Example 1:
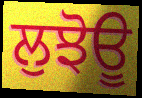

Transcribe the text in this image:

ਲੁਝੋਊ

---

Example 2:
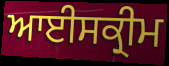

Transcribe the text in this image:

ਆਈਸਕ੍ਰੀਮ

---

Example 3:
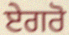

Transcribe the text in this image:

ਏਗਰੋ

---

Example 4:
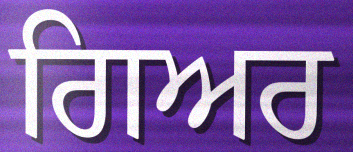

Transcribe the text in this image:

ਗਿਅਰ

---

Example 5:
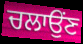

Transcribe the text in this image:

ਚਲਾਉਂਣ